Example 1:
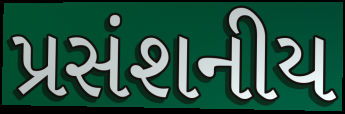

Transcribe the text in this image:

પ્રસંશનીય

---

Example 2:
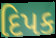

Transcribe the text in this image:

દિપક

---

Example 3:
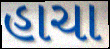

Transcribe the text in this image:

હાચા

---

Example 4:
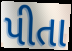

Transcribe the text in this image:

પીતા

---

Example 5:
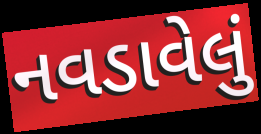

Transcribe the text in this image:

નવડાવેલું